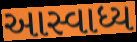
આસ્વાધ્ય